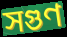
সগুণ